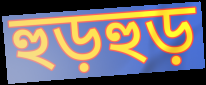
হুড়হুড়